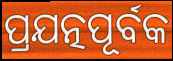
ପ୍ରଯତ୍ନପୂର୍ବକ